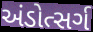
અંડોત્સર્ગ